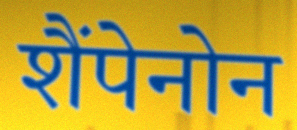
शैंपेनोन